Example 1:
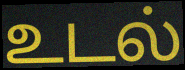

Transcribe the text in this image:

உடல்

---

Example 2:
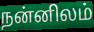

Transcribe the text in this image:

நன்னிலம்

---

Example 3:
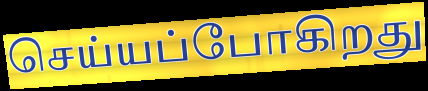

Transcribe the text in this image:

செய்யப்போகிறது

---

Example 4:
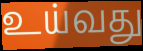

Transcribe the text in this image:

உய்வது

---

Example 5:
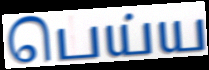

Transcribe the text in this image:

பெய்ய